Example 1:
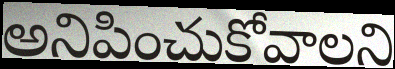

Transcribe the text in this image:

అనిపించుకోవాలని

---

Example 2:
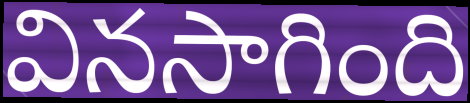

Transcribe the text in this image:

వినసాగింది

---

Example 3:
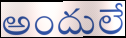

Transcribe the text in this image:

అందులే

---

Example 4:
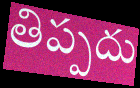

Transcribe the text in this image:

తిప్పదు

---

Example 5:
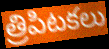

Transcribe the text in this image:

త్రిపిటకలు